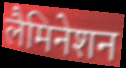
लैमिनेशन